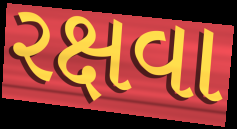
રક્ષવા